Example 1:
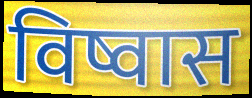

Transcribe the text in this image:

विष्वास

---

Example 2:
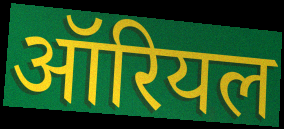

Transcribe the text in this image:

ऑरियल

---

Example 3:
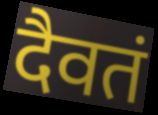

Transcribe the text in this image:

दैवतं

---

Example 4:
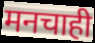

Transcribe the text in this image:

मनचाही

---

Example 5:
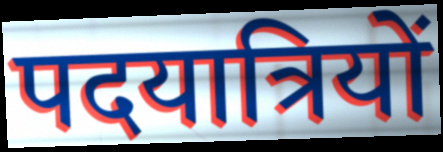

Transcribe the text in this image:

पदयात्रियों